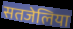
सतजेलिया